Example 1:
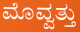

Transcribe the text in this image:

ಮೊವ್ವತ್ತು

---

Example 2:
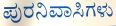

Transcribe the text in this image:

ಪುರನಿವಾಸಿಗಳು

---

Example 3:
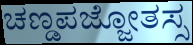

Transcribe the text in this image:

ಚಣ್ಡಪಜ್ಜೋತಸ್ಸ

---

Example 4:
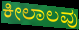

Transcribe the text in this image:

ಕೀಲಾಲವು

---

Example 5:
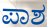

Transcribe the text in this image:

ಪಾಶ